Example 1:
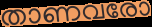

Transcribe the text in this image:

താണവരോ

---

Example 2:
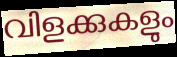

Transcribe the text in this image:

വിളക്കുകളും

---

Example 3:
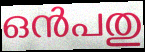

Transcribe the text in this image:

ഒൻപതു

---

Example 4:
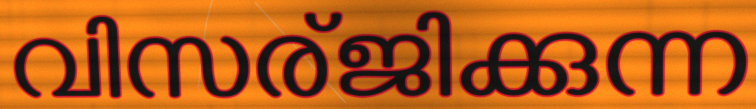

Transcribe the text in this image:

വിസര്ജിക്കുന്ന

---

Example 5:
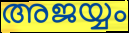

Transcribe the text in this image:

അജയ്യം